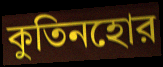
কুতিনহোর